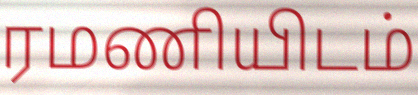
ரமணியிடம்